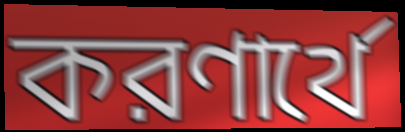
করণার্থে